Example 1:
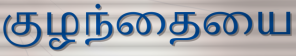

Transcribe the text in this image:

குழந்தையை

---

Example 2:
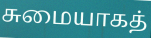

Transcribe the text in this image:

சுமையாகத்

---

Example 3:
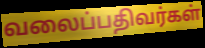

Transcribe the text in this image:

வலைப்பதிவர்கள்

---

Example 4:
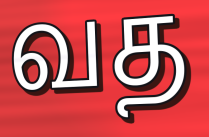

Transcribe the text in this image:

வத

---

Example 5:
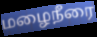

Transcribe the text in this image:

மழைநீரை